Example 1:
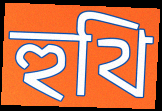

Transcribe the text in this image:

হুথি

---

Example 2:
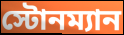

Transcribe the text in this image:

স্টোনম্যান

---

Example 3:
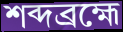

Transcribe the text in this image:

শব্দব্রহ্মে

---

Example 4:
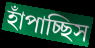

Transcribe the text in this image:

হাঁপাচ্ছিস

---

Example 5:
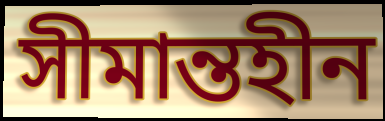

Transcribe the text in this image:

সীমান্তহীন